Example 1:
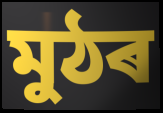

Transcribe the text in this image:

মুঠৰ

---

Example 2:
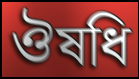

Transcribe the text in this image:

ঔষধি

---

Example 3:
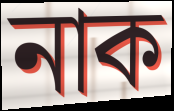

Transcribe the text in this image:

নাক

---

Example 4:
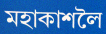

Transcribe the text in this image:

মহাকাশলৈ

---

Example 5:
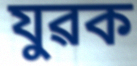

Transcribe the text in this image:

যুৱক